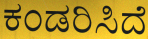
ಕಂಡರಿಸಿದೆ